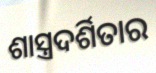
ଶାସ୍ତ୍ରଦର୍ଶିତାର